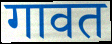
गावत